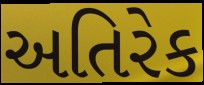
અતિરેક